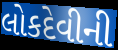
લોકદેવીની